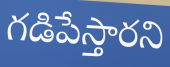
గడిపేస్తారని